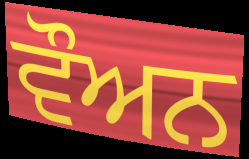
ਵੌਅਨ